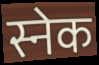
स्‍नेक